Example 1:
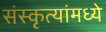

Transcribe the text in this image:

संस्कृत्यांमध्ये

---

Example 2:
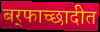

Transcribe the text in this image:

बर्फाच्छादीत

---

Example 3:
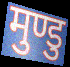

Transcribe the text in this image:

मुण्डु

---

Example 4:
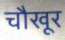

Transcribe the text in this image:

चौखूर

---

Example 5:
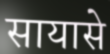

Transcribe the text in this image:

सायासे